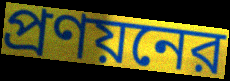
প্রণয়নের